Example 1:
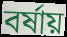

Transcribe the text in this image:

বর্ষায়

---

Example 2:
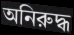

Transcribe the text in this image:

অনিরুদ্ধ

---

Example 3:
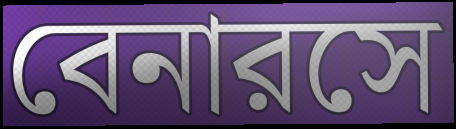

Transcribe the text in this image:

বেনারসে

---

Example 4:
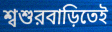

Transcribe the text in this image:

শ্বশুরবাড়িতেই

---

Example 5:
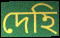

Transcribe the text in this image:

দেহি